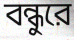
বন্ধুরে